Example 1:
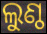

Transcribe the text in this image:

ଲୁଣ୍ଠ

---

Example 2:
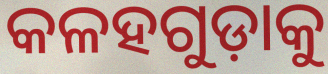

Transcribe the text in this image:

କଳହଗୁଡ଼ାକୁ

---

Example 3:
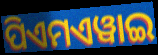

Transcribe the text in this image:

ପିଏମଏୱାଇ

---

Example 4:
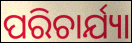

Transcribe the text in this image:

ପରିଚାର୍ଯ୍ୟା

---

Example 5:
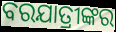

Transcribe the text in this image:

ବରଯାତ୍ରୀଙ୍କର